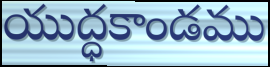
యుద్ధకాండము